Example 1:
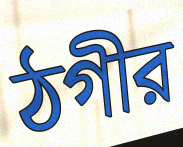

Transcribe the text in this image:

ঠগীর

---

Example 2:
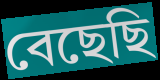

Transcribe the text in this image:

বেছেছি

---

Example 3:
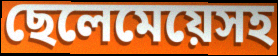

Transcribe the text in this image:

ছেলেমেয়েসহ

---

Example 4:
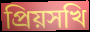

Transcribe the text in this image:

প্রিয়সখি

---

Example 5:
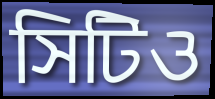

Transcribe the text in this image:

সিটিও